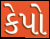
કેપો